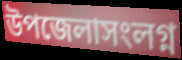
উপজেলাসংলগ্ন